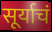
सूर्याचं